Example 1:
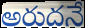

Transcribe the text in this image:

అరుదనే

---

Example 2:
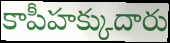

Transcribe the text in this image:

కాపీహక్కుదారు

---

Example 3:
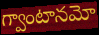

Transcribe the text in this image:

గ్వాంటానమో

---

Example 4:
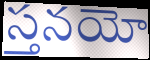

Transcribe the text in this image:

స్తనయో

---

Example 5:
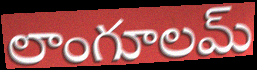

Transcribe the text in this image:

లాంగూలమ్